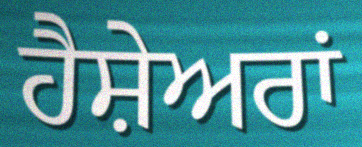
ਹੈਸ਼ੇਅਰਾਂ